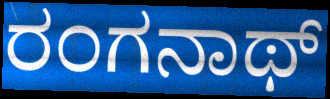
ರಂಗನಾಥ್